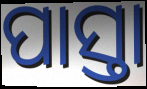
ପାସ୍ତା